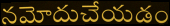
నమోదుచేయడం